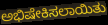
ಅಭಿಷೇಕಿಸಲಾಯಿತು